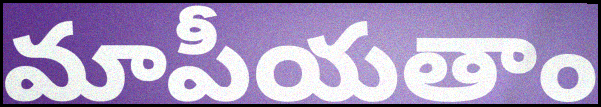
మాపీయతాం